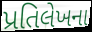
પ્રતિલેખના